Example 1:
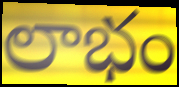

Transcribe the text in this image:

లాభం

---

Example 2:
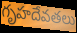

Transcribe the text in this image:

గృహదేవతలు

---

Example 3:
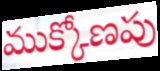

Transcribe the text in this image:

ముక్కోణపు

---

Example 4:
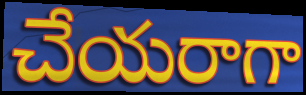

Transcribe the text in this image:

చేయరాగా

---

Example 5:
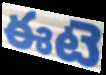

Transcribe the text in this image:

ఈటె